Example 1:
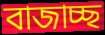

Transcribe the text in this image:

বাজাচ্ছ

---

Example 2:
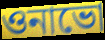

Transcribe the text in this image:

ওনাভো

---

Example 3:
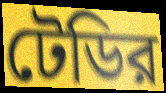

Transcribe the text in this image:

টেডির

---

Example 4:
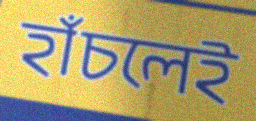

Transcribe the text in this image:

হাঁচলেই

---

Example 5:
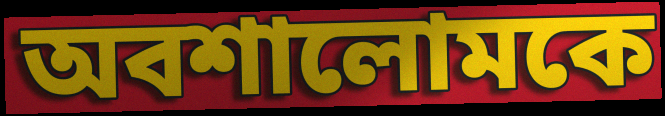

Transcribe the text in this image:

অবশালোমকে